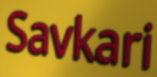
Savkari